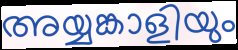
അയ്യങ്കാളിയും